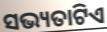
ସଭ୍ୟତାଟିଏ